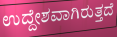
ಉದ್ದೇಶವಾಗಿರುತ್ತದೆ